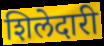
शिलेदारी